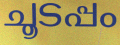
ചൂടപ്പം